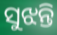
ସୁଝନ୍ତି